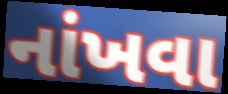
નાંખવા